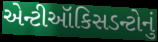
એન્ટીઑકિસડન્ટોનું